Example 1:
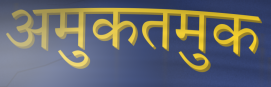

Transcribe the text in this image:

अमुकतमुक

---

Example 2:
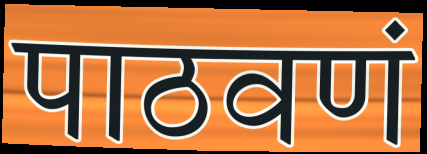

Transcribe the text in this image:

पाठवणं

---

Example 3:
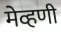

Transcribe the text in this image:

मेव्हणी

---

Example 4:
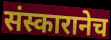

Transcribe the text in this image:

संस्कारानेच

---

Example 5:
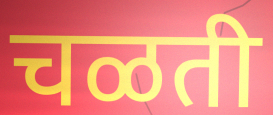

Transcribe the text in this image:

चळती